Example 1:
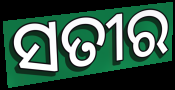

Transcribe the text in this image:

ସତୀର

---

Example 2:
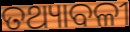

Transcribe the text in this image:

ତଥ୍ୟାବଳୀ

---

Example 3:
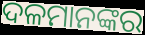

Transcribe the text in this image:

ଦଳମାନଙ୍କର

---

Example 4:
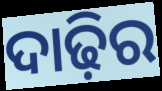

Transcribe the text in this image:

ଦାଢ଼ିର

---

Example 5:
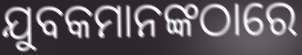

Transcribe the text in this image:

ଯୁବକମାନଙ୍କଠାରେ